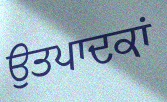
ਉਤਪਾਦਕਾਂ